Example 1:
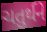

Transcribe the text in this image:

ચતુર્થને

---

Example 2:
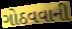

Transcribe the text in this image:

ગોઠવવાની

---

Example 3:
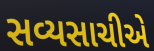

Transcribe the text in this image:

સવ્યસાચીએ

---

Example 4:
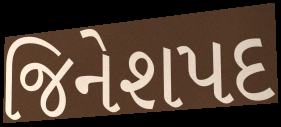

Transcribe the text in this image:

જિનેશપદ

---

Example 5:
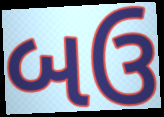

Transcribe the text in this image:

બઉ